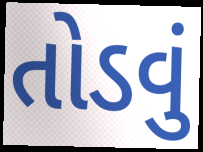
તોડવું